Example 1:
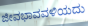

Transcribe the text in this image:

ಜೀವಭಾವವಳಿಯದು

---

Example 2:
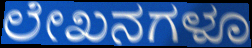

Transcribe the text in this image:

ಲೇಖನಗಳೂ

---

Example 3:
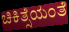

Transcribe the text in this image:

ಚಿಕಿತ್ಸೆಯಂತೆ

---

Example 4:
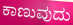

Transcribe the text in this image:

ಕಾಣುವುದು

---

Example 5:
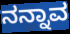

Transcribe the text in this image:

ನನ್ನಾವ